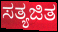
ಸತ್ಯಜಿತ